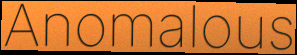
Anomalous